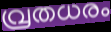
വ്രതധരം